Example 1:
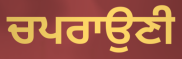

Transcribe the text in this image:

ਚਪਰਾਉਣੀ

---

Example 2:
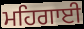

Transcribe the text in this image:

ਮਹਿਗਾਈ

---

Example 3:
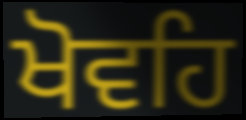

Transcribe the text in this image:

ਖੋਵਹਿ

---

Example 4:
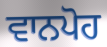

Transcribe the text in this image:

ਵਾਨਪੋਹ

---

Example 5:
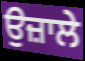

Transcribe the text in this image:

ਉਜ਼ਾਲੇ